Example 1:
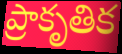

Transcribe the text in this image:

ప్రాకృతిక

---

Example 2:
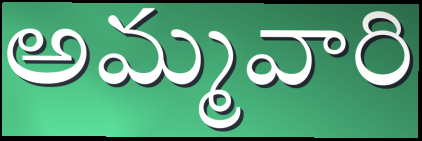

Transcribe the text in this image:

అమ్మవారి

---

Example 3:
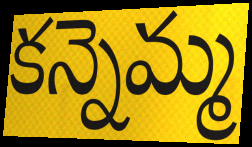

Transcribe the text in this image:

కన్నెమ్మ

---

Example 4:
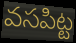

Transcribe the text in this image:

వసపిట్ట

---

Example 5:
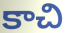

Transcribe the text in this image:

కాచి